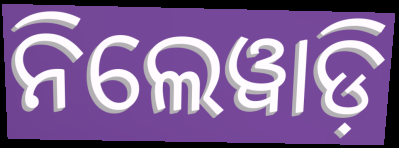
ନିଲେୱାଡ଼ି